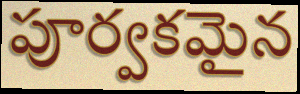
పూర్వకమైన